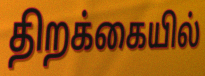
திறக்கையில்